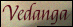
Vedanga